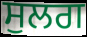
ਸੁਲਗ